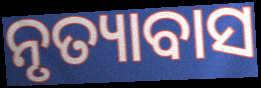
ନୃତ୍ୟାବାସ